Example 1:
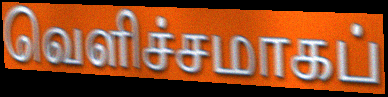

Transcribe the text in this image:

வெளிச்சமாகப்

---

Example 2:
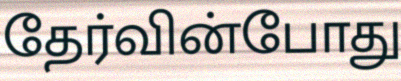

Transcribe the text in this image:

தேர்வின்போது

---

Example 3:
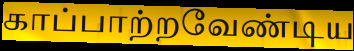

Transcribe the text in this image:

காப்பாற்றவேண்டிய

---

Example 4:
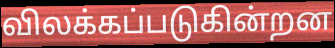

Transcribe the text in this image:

விலக்கப்படுகின்றன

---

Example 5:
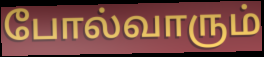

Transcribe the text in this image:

போல்வாரும்